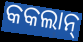
କକଲାନ୍